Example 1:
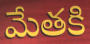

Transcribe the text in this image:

మేతకి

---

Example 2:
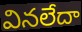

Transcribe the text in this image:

వినలేదా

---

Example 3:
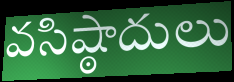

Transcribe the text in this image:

వసిష్ఠాదులు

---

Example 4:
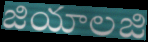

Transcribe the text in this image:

జియాలజి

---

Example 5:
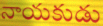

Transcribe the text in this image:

నాయకుడు